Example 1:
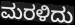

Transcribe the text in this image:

ಮರಳಿದು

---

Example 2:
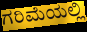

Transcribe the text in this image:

ಗರಿಮೆಯಲ್ಲಿ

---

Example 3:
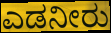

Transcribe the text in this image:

ಎಡನೀರು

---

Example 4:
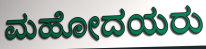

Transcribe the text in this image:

ಮಹೋದಯರು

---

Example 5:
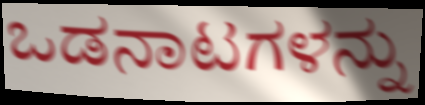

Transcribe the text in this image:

ಒಡನಾಟಗಳನ್ನು